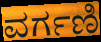
ವರ್ಗಣಿ